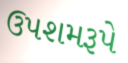
ઉપશમરૂપે